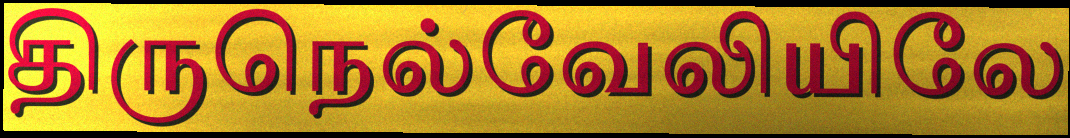
திருநெல்வேலியிலே